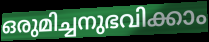
ഒരുമിച്ചനുഭവിക്കാം